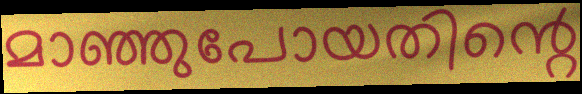
മാഞ്ഞുപോയതിന്റെ